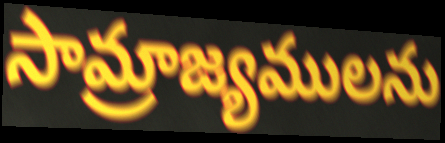
సామ్రాజ్యములను